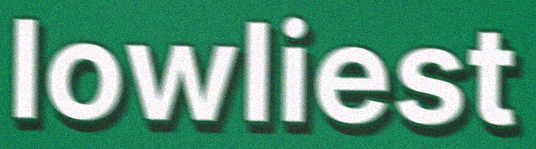
lowliest